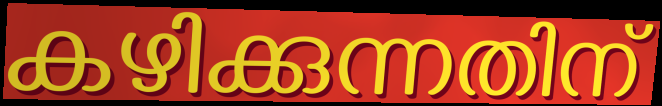
കഴിക്കുന്നതിന്